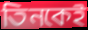
তিনকেই